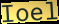
Ioel